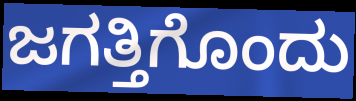
ಜಗತ್ತಿಗೊಂದು